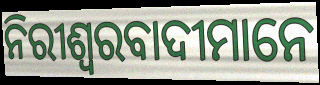
ନିରୀଶ୍ବରବାଦୀମାନେ